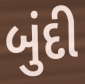
બુંદી